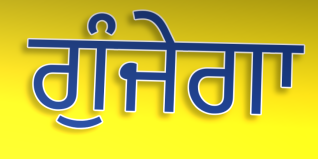
ਗੁੰਜੇਗਾ